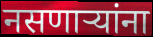
नसणाऱ्यांना